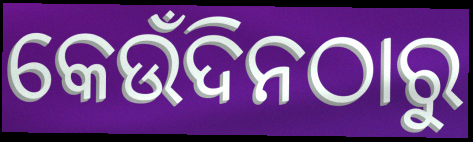
କେଉଁଦିନଠାରୁ